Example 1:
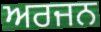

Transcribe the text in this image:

ਅਰਜਨ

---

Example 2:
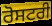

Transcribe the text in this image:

ਰੋਸਟਰੀ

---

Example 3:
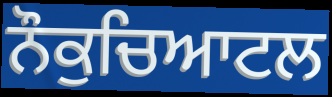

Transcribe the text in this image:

ਨੌਕੁਚਿਆਟਲ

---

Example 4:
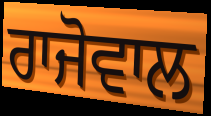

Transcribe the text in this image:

ਰਾਜੋਵਾਲ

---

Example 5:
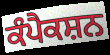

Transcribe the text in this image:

ਕੰਪੈਕਸ਼ਨ